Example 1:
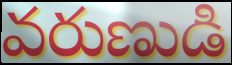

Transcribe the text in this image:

వరుణుడి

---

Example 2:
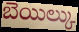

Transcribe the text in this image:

బెయిల్కు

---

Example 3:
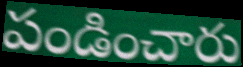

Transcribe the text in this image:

పండించారు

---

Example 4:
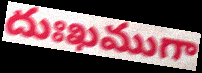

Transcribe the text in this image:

దుఃఖముగా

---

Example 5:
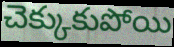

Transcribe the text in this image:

చెక్కుకుపోయి